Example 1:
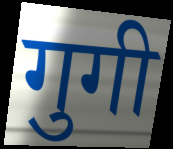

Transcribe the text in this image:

गुगी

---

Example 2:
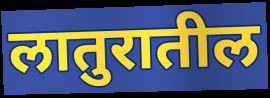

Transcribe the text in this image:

लातुरातील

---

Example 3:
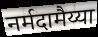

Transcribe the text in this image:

नर्मदामैय्या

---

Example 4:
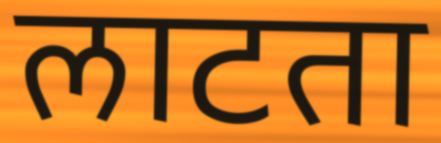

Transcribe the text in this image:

लाटता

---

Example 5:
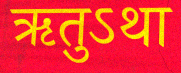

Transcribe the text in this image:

ऋतुऽथा